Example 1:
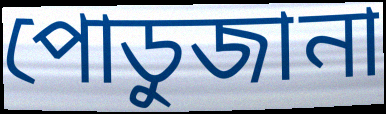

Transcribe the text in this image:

পোডুজানা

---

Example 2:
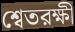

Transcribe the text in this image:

শ্বেতরক্ষী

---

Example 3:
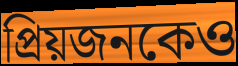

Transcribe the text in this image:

প্রিয়জনকেও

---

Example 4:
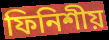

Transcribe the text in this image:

ফিনিশীয়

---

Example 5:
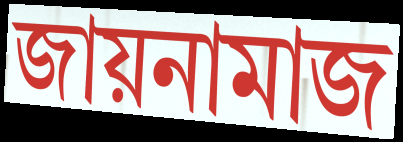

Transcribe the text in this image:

জায়নামাজ